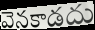
వెనకాడదు